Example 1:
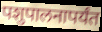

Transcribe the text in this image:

पशुपालनापर्यंत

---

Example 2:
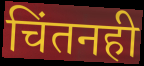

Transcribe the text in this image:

चिंतनही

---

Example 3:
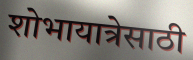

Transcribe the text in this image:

शोभायात्रेसाठी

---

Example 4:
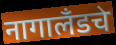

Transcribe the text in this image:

नागालँडचे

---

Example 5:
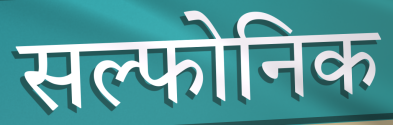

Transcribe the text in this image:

सल्फोनिक